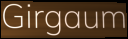
Girgaum